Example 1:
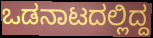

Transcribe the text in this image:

ಒಡನಾಟದಲ್ಲಿದ್ದ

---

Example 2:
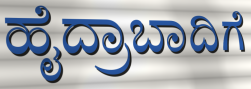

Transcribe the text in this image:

ಹೈದ್ರಾಬಾದಿಗೆ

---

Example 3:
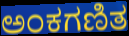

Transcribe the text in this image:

ಅಂಕಗಣಿತ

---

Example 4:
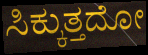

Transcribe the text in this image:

ಸಿಕ್ಕುತ್ತದೋ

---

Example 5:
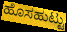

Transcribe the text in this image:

ಹೊಸಹುಟ್ಟು